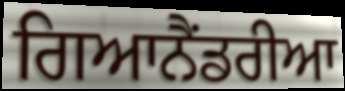
ਗਿਆਨੈਂਡਰੀਆ